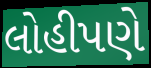
લોહીપણે